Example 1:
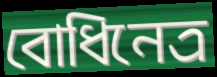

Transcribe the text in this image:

বোধিনেত্ৰ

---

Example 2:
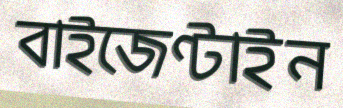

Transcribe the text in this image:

বাইজেণ্টাইন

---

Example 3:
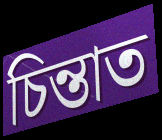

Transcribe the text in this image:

চিন্তাত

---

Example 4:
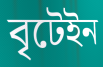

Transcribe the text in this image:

বৃটেইন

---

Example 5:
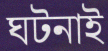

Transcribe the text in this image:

ঘটনাই